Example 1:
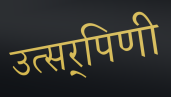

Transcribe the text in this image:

उत्सर्पिणी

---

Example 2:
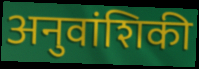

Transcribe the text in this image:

अनुवांशिकी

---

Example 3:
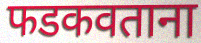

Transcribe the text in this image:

फडकवताना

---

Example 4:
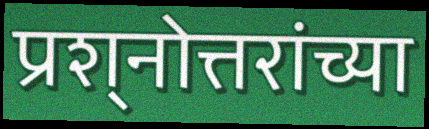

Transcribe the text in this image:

प्रश्नोत्तरांच्या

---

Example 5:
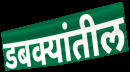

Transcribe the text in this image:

डबक्यांतील